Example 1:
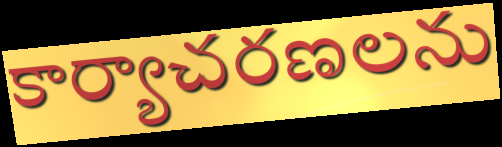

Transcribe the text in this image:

కార్యాచరణలను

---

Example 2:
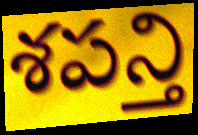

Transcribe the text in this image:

శపన్తి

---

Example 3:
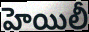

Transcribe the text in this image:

హెయిలీ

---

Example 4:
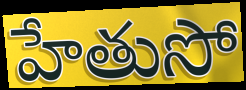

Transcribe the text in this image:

హేతుసో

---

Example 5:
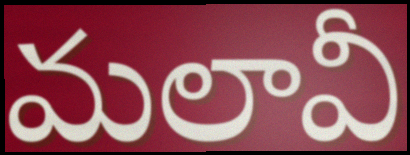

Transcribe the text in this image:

మలావీ